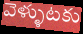
వెళ్ళుటకు